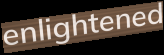
enlightened